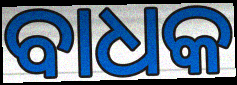
ବାଧକ